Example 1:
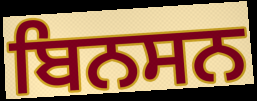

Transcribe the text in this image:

ਬਿਨਸਨ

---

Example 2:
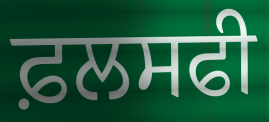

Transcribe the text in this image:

ਫ਼ਲਸਫੀ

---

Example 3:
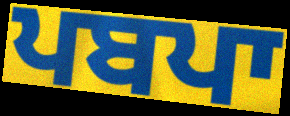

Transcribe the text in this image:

ਪਬਪਾ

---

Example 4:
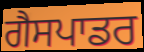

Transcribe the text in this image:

ਗੈਸਪਾਡਰ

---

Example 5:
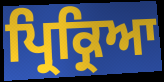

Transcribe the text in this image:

ਪ੍ਰਿਕ੍ਰਿਆ